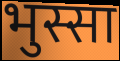
भुस्सा